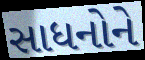
સાધનોને